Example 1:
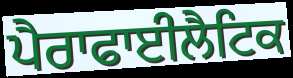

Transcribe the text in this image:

ਪੈਰਾਫਾਈਲੈਟਿਕ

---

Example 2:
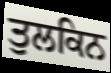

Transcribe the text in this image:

ਤੁਲਕਿਨ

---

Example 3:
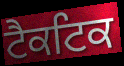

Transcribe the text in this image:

ਟੈਕਟਿਕ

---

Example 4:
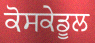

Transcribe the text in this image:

ਕੋਸਕੇਡੂਲ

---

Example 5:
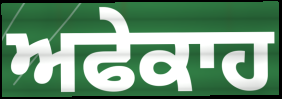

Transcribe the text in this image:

ਅਫੇਕਾਹ